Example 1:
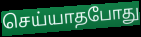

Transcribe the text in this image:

செய்யாதபோது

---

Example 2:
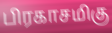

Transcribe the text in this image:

பிரகாசமிகு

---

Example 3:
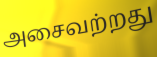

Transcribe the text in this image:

அசைவற்றது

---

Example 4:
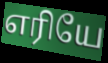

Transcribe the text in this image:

எரியே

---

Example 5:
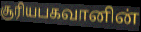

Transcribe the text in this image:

சூரியபகவானின்